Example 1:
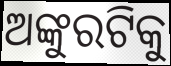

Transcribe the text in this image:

ଅଙ୍କୁରଟିକୁ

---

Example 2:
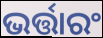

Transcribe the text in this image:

ଭର୍ତ୍ତାରଂ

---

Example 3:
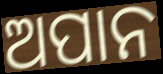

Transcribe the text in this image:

ଅପାନ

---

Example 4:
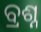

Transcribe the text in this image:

ବ୍ରଶ୍ନ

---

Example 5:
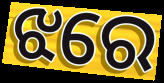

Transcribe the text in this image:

ଝରେ